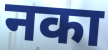
नका